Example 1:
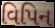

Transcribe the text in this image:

વિપિન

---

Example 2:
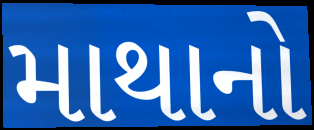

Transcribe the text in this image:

માથાનો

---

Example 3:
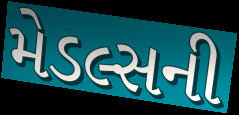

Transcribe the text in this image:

મેડલ્સની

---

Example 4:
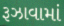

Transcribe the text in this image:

રૂઝાવામાં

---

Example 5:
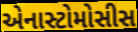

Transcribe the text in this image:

એનાસ્ટોમોસીસ